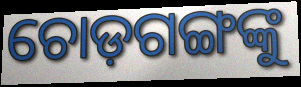
ଚୋଡ଼ଗଙ୍ଗଙ୍କୁ